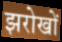
झरोखों